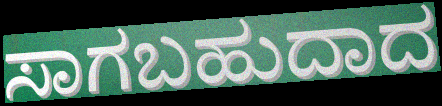
ಸಾಗಬಹುದಾದ